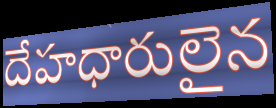
దేహధారులైన